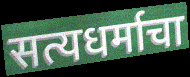
सत्यधर्माचा